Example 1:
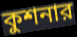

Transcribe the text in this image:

কুশনার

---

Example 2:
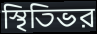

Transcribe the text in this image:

স্থিতিভর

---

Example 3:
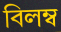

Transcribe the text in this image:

বিলম্ব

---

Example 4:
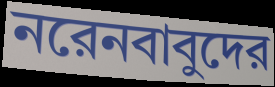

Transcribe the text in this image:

নরেনবাবুদের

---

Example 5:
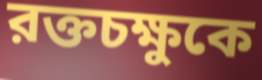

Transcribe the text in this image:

রক্তচক্ষুকে